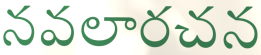
నవలారచన